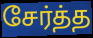
சேர்த்த